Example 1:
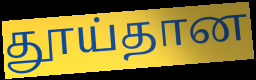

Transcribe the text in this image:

தூய்தான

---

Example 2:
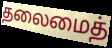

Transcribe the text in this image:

தலைமைத்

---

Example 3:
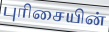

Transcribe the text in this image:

புரிசையின்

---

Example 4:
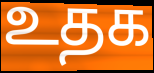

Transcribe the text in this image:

உதக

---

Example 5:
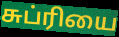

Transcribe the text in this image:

சுப்ரியை